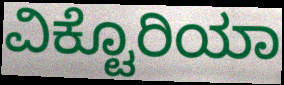
ವಿಕ್ಟೊರಿಯಾ